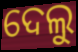
ଦେଲୁ